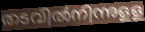
തടവിൽനിന്നുളള